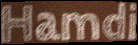
Hamdi